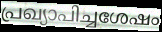
പ്രഖ്യാപിച്ചശേഷം